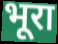
भूरा